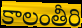
కాలంతీరి